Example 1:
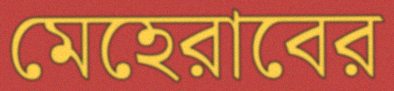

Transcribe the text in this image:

মেহেরাবের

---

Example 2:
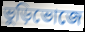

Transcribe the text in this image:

ভুড়িভোজে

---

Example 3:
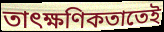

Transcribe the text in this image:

তাৎক্ষণিকতাতেই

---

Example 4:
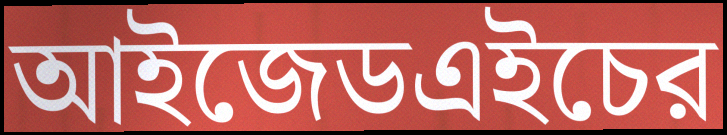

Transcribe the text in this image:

আইজেডএইচের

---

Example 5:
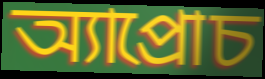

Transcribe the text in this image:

অ্যাপ্রোচ